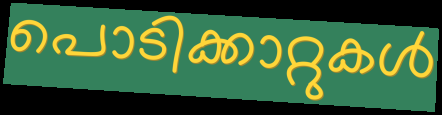
പൊടിക്കാറ്റുകൾ